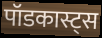
पॉडकास्ट्स